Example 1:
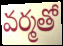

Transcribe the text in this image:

వర్మతో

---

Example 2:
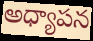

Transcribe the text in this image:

అధ్యాపన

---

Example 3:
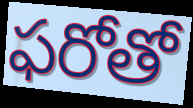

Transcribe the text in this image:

ఫరోతో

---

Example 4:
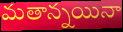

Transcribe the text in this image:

మతాన్నయినా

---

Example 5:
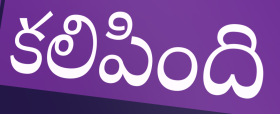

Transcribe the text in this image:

కలిపింది